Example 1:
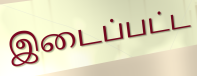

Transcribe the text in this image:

இடைப்பட்ட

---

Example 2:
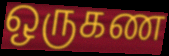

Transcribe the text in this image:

ஒருகண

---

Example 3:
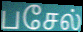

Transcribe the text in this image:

பசேல்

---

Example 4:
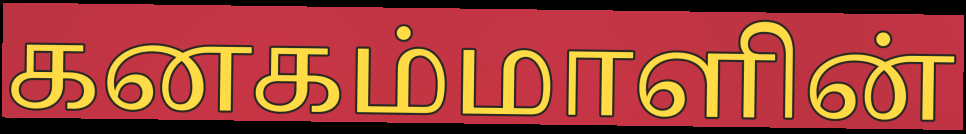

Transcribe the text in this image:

கனகம்மாளின்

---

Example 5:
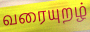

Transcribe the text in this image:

வரையுறழ்